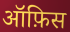
ऑफ़िस